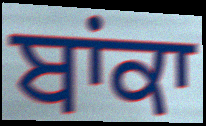
ਬਾਂਕਾ